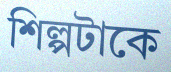
শিল্পটাকে